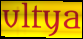
ultya